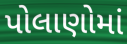
પોલાણોમાં